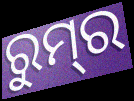
ରୁମ୍‌ର